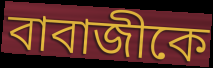
বাবাজীকে